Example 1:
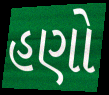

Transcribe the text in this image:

હણો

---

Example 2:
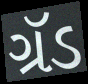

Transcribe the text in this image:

ગ્રૅડ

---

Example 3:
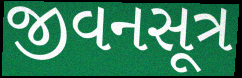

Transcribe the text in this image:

જીવનસૂત્ર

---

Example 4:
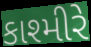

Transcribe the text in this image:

કાશ્મીરે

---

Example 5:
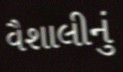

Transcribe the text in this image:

વૈશાલીનું